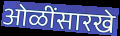
ओळींसारखे